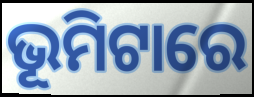
ଭୂମିଟାରେ